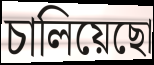
চালিয়েছো